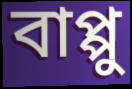
বাপ্পু